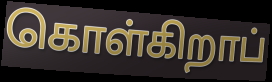
கொள்கிறாப்